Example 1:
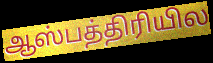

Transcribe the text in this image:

ஆஸ்பத்திரியில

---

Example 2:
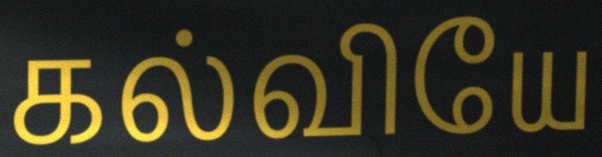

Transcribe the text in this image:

கல்வியே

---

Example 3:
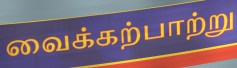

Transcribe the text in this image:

வைக்கற்பாற்று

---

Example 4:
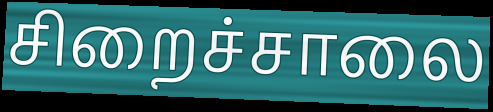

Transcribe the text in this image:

சிறைச்சாலை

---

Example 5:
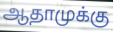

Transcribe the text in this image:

ஆதாமுக்கு